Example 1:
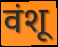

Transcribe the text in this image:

वंशू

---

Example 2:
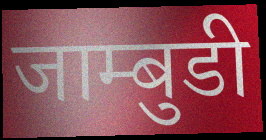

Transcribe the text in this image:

जाम्बुडी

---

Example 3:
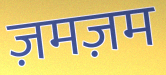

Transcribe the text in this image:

ज़मज़म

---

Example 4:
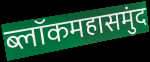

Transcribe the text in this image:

ब्लॉकमहासमुंद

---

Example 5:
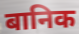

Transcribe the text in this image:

बानिक